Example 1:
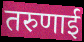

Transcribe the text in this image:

तरुणाई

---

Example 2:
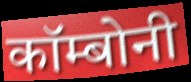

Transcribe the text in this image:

कॉम्बोनी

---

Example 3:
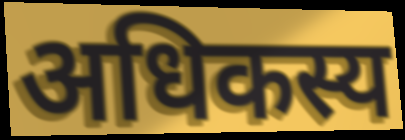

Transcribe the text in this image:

अधिकस्य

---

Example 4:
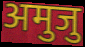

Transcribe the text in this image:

अमुजु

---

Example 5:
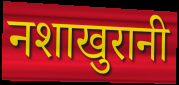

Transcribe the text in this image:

नशाखुरानी